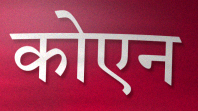
कोएन